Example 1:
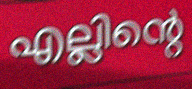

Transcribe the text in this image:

എല്ലിന്റെ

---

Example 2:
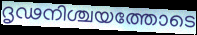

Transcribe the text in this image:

ദൃഢനിശ്ചയത്തോടെ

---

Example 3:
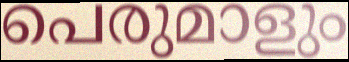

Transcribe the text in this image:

പെരുമാളും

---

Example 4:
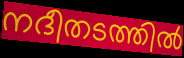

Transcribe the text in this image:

നദീതടത്തിൽ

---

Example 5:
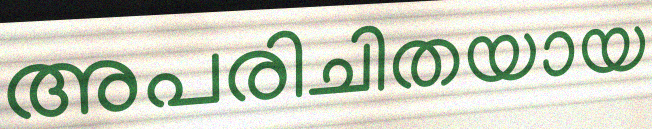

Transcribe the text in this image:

അപരിചിതയായ